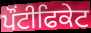
ਪੌਂਟੀਫਿਕੇਟ